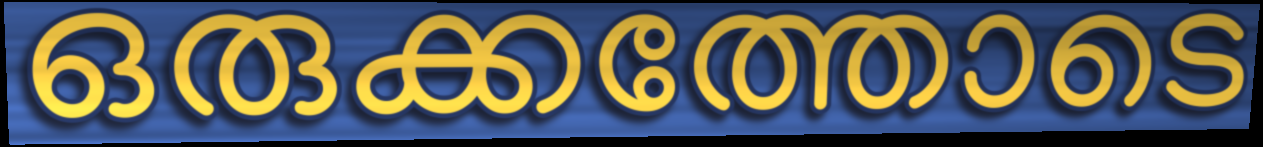
ഒരുക്കത്തോടെ